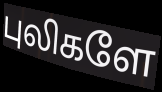
புலிகளே